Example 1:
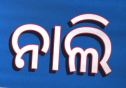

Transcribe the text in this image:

ନାଲି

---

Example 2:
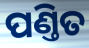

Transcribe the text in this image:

ପଣ୍ତିତ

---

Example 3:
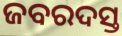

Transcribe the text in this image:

ଜବରଦସ୍ତ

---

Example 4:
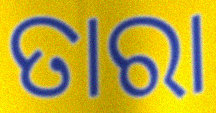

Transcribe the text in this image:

ତାରା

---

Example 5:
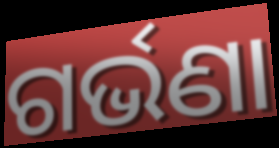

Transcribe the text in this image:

ଗର୍ଭଣା